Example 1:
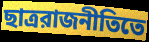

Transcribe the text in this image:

ছাত্ররাজনীতিতে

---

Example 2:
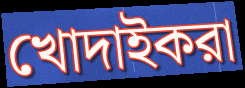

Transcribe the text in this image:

খোদাইকরা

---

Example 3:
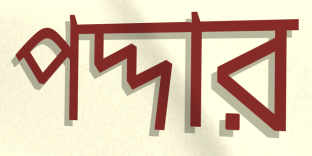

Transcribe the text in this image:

পদ্দার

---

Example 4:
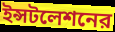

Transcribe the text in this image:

ইন্সটলেশনের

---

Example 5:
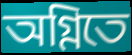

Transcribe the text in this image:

অগ্নিতে